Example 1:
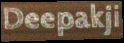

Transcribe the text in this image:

Deepakji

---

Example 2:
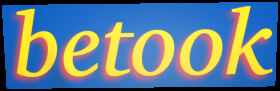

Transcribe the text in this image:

betook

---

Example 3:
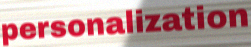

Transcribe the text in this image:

personalization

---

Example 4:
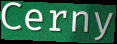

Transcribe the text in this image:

Cerny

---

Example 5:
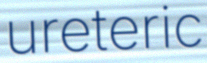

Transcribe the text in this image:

ureteric